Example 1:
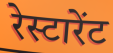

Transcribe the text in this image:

रेस्टारेंट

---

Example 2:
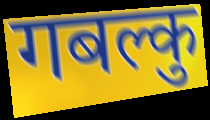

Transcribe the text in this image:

गबल्कु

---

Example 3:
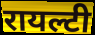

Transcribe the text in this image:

रायल्टी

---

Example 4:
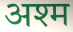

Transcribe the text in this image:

अश्म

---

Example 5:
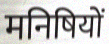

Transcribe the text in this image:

मनिषियों